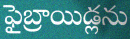
ఫైబ్రాయిడ్లను